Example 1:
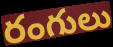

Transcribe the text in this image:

రంగులు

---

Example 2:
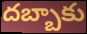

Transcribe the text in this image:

దబ్బాకు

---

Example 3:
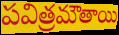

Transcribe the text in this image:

పవిత్రమౌతాయి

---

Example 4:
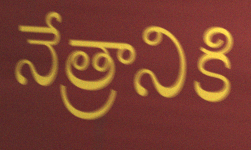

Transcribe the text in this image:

నేత్రానికి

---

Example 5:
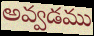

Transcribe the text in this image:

అవ్వడము